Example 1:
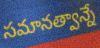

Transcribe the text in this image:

సమానత్వాన్నే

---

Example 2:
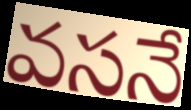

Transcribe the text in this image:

వసనే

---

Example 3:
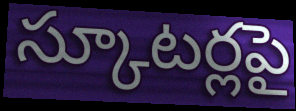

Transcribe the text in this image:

స్కూటర్లపై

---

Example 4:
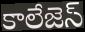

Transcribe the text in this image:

కాలేజెస్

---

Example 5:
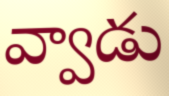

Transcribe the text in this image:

వ్వాడు